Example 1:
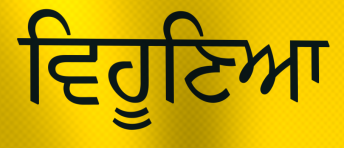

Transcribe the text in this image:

ਵਿਹੂਣਿਆ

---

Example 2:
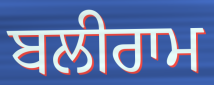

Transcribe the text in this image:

ਬਲੀਰਾਮ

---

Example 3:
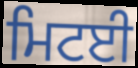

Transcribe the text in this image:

ਮਿਟਈ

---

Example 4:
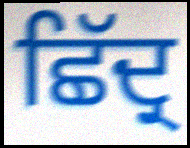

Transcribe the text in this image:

ਛਿੱਦ੍ਰ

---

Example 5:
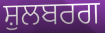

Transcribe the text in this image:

ਸ਼ੁਲਬਰਗ